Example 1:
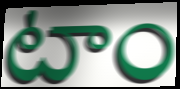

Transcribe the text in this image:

టాం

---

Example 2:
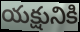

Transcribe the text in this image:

యక్షునికి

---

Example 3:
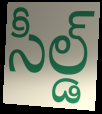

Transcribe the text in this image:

సీల్డ్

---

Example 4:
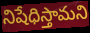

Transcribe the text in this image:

నిషేధిస్తామని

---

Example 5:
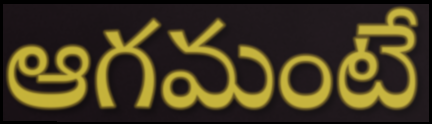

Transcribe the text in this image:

ఆగమంటే